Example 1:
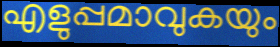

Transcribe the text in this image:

എളുപ്പമാവുകയും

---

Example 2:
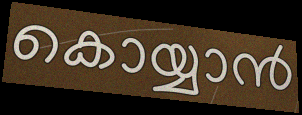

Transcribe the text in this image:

കൊയ്യാൻ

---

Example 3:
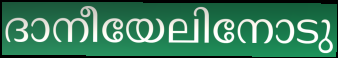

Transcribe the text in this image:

ദാനീയേലിനോടു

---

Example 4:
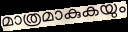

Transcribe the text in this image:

മാത്രമാകുകയും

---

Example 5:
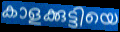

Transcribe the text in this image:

കാളക്കുട്ടിയെ